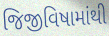
જિજીવિષામાંથી